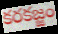
కరకజ్జం